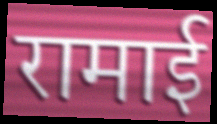
रामाई